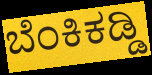
ಬೆಂಕಿಕಡ್ಡಿ